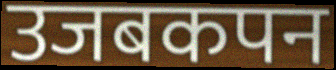
उजबकपन